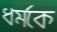
ধর্মকে